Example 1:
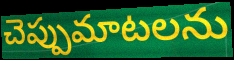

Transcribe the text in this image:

చెప్పుమాటలను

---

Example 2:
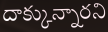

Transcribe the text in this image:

దాక్కున్నారని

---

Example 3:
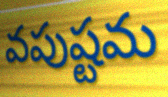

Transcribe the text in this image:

వపుష్టమ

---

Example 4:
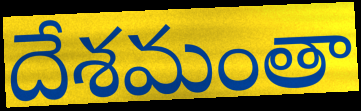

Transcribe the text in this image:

దేశమంతా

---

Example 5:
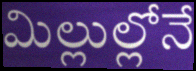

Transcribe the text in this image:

మిల్లుల్లోనే